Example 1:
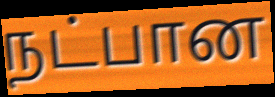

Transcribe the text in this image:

நட்பான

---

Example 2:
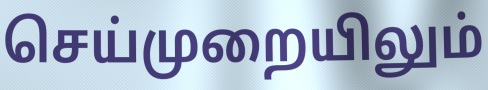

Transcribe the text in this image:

செய்முறையிலும்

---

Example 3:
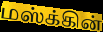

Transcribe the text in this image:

மஸ்க்கின்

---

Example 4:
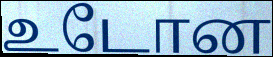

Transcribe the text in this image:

உடோன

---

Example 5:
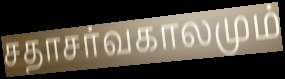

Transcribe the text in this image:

சதாசர்வகாலமும்